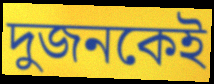
দুজনকেই